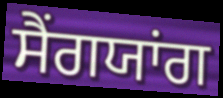
ਸੈਂਗਯਾਂਗ